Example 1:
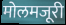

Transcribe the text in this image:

मोलमजूरी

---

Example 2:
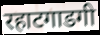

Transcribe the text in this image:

रहाटगाडगी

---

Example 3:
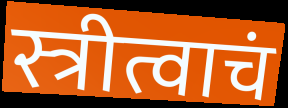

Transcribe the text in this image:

स्त्रीत्वाचं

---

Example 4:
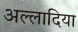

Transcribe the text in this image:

अल्लादिया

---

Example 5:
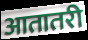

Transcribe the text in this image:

आतातरी